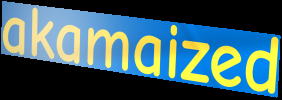
akamaized